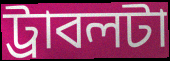
ট্রাবলটা